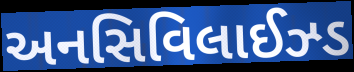
અનસિવિલાઈઝ્ડ